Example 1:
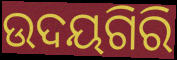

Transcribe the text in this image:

ଉଦୟଗିରି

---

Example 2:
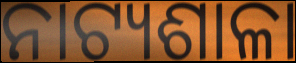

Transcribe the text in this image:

ନାଟ୍ୟଶାଳା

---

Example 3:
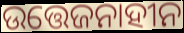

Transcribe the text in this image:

ଉତ୍ତେଜନାହୀନ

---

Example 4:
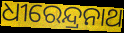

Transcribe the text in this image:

ଧୀରେନ୍ଦ୍ରନାଥ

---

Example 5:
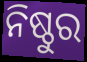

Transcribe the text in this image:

ନିଷ୍ଠୁର